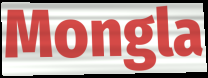
Mongla